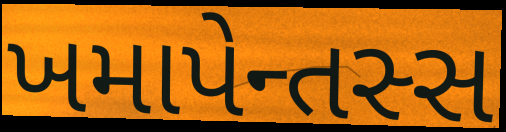
ખમાપેન્તસ્સ